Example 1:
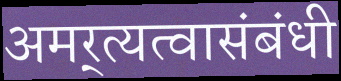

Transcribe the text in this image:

अमर्त्यत्वासंबंधी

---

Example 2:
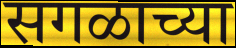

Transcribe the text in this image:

सगळाच्या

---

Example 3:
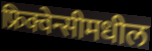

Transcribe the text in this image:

फ्रिक्वेन्सीमधील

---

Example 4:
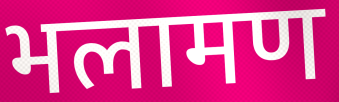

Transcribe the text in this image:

भलामण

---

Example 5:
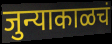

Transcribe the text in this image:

जुन्याकाळचं